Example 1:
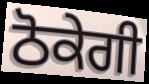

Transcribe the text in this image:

ਠੋਕੇਗੀ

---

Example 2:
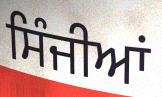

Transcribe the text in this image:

ਸਿੰਜੀਆਂ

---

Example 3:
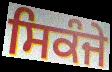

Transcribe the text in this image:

ਸਿਕੰਜੇ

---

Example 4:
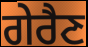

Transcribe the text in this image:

ਗੇਰੈਣ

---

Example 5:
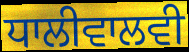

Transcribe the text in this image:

ਧਾਲੀਵਾਲਵੀ